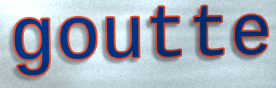
goutte